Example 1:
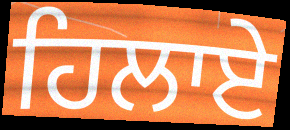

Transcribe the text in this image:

ਹਿਲਾਏ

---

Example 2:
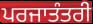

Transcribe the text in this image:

ਪਰਜਾਤੰਤਰੀ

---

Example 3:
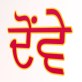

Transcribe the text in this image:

ਦੋਂਵੇ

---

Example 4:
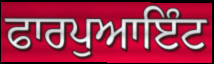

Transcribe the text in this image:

ਫਾਰਪੁਆਇੰਟ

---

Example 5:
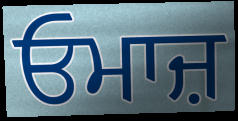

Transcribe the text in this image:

ਓਮਾਜ਼